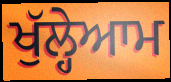
ਖੁੱਲ੍ਹੇਆਮ